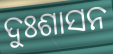
ଦୁଃଶାସନ